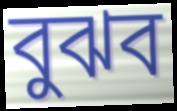
বুঝব